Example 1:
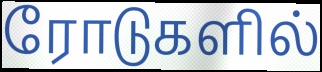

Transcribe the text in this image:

ரோடுகளில்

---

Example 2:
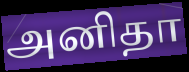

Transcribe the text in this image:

அனிதா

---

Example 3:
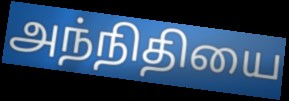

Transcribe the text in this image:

அந்நிதியை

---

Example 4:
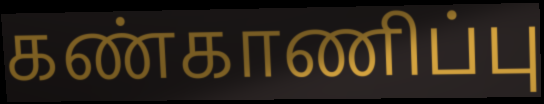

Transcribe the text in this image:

கண்காணிப்பு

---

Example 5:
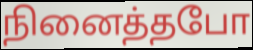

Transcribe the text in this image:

நினைத்தபோ